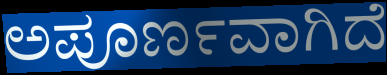
ಅಪೂರ್ಣವಾಗಿದೆ